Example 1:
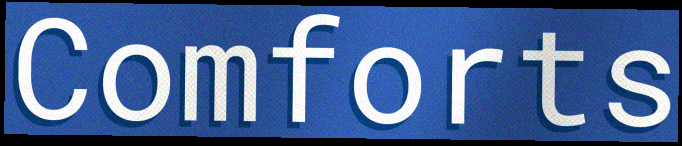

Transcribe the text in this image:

Comforts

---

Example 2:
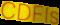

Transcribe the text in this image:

CDFIs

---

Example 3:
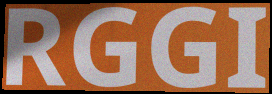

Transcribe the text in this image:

RGGI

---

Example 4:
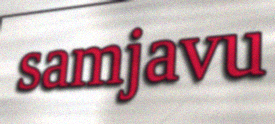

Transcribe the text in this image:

samjavu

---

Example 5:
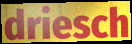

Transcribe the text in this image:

driesch